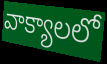
వాక్యాలలో